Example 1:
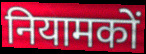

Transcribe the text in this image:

नियामकों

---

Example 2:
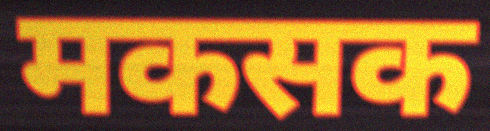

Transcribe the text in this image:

मकसक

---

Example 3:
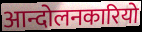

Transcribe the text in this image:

आन्दोलनकारियो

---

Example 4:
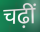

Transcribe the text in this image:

चढ़ीं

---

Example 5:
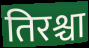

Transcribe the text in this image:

तिरश्चा